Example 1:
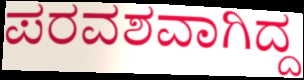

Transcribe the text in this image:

ಪರವಶವಾಗಿದ್ದ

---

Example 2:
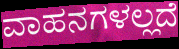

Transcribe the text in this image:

ವಾಹನಗಳಲ್ಲದೆ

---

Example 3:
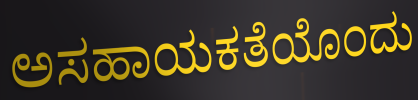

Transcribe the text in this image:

ಅಸಹಾಯಕತೆಯೊಂದು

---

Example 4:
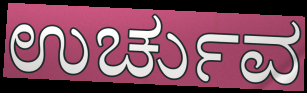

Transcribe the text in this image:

ಉರ್ಚುವ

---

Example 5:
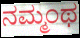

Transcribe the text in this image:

ನಮ್ಮಂಥ